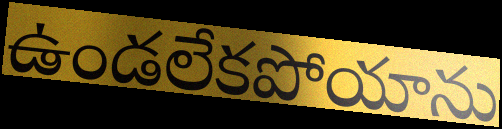
ఉండలేకపోయాను